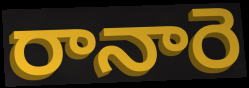
రానారె